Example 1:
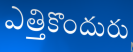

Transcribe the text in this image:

ఎత్తికొందురు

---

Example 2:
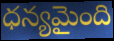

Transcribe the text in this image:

ధన్యమైంది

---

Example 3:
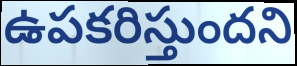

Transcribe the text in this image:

ఉపకరిస్తుందని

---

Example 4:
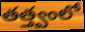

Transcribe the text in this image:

తత్త్వంలో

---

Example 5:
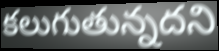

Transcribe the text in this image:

కలుగుతున్నదని